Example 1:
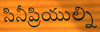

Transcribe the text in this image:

సినీప్రియుల్ని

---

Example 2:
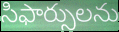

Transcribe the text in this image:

సిఫార్సులను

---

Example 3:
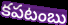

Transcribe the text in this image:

కపటంబు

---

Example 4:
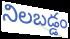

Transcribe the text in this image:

నిలబడ్డం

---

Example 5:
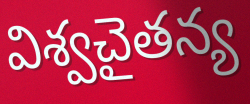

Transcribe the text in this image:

విశ్వచైతన్య